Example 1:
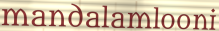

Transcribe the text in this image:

mandalamlooni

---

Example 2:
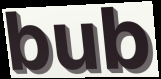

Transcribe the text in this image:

bub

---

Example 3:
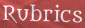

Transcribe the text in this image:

Rubrics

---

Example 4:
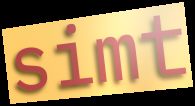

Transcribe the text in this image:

simt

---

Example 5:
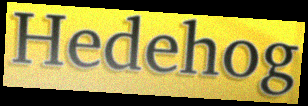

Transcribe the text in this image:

Hedehog